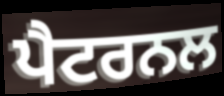
ਪੈਟਰਨਲ